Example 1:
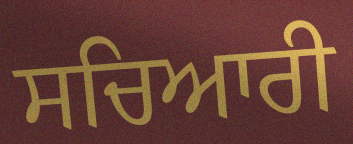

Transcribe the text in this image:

ਸਚਿਆਰੀ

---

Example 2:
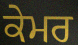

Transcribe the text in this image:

ਕੇਮਰ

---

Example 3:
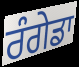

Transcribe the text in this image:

ਰੰਗੇਡਾ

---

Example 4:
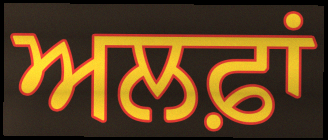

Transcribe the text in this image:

ਅਲਫ਼ਾਂ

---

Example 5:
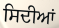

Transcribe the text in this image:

ਸਿਦੀਆਂ